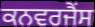
ਕਨਵਰਜੈਂਸ